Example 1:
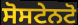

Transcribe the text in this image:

ਸੋਸਟੇਨਟੋ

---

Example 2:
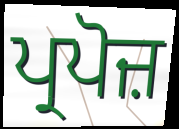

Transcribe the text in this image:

ਪ੍ਰਪੋਜ਼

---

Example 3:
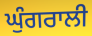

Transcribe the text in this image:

ਘੁੰਗਰਾਲੀ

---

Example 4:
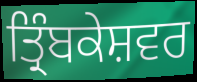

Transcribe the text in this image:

ਤ੍ਰਿੰਬਕੇਸ਼ਵਰ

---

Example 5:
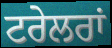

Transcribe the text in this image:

ਟਰੇਲਰਾਂ